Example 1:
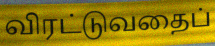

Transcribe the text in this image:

விரட்டுவதைப்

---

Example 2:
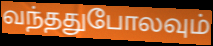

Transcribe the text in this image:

வந்ததுபோலவும்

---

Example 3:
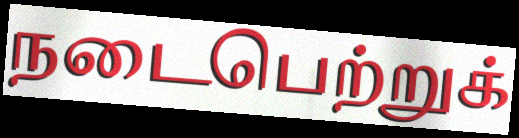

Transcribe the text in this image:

நடைபெற்றுக்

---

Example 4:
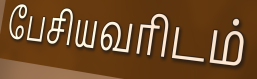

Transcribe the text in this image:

பேசியவரிடம்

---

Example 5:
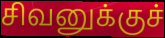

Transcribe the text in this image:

சிவனுக்குச்